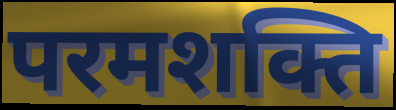
परमशक्ति